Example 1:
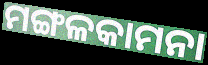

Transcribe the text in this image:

ମଙ୍ଗଳକାମନା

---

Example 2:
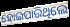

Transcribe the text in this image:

ହୋଇପାରିଥିଲେ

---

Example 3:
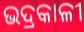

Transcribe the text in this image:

ଭଦ୍ରକାଳୀ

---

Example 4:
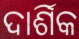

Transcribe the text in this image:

ଦାର୍ଶିକ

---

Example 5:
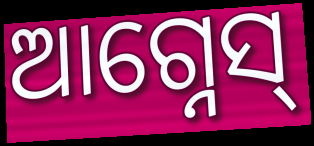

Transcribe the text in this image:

ଆଗ୍ନେସ୍